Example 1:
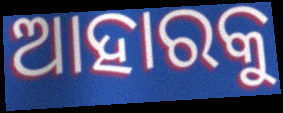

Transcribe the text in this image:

ଆହାରକୁ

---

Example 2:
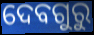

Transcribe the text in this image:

ଦେବଗୁରୁ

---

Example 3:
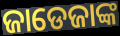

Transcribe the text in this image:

ଜାଡେଜାଙ୍କ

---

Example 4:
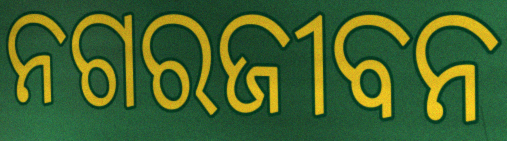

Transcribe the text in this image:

ନଗରଜୀବନ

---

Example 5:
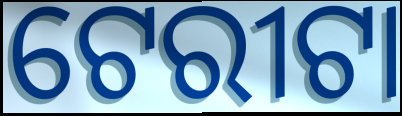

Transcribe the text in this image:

ଟେରୀଟା